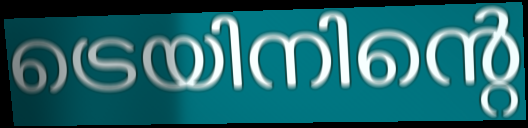
ട്രെയിനിന്റെ